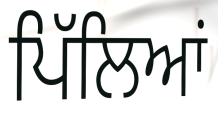
ਪਿੱਲਿਆਂ